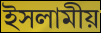
ইসলামীয়